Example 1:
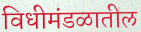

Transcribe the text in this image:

विधीमंडळातील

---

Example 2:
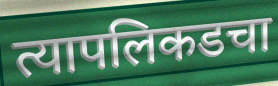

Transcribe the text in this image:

त्यापलिकडचा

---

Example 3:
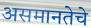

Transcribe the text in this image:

असमानतेचे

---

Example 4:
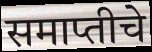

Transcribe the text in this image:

समाप्तीचे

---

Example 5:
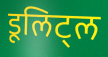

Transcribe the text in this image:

डूलिट्ल